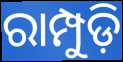
ରାମ୍ପୁଡ଼ି